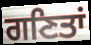
ਗਣਿਤਾਂ